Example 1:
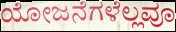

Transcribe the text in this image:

ಯೋಜನೆಗಳೆಲ್ಲವೂ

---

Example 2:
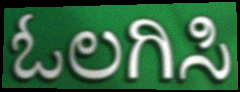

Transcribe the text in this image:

ಓಲಗಿಸಿ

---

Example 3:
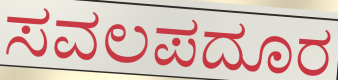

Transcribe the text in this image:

ಸವಲಪದೂರ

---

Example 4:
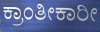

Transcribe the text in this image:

ಕ್ರಾಂತೀಕಾರೀ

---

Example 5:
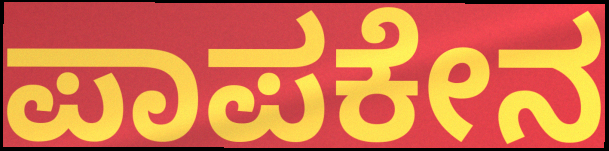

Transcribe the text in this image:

ಪಾಪಕೇನ